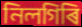
নিলগিৰি